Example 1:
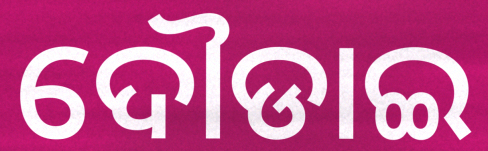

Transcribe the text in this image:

ଦୌଡାଇ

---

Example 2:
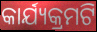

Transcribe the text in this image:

କାର୍ଯ୍ୟକ୍ରମଟି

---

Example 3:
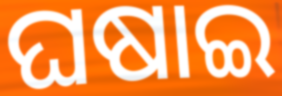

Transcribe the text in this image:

ଘଷାଇ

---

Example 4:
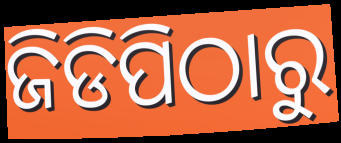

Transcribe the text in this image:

ଜିଡିପିଠାରୁ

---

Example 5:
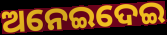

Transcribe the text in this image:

ଅନେଇଦେଇ